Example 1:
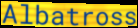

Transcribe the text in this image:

Albatross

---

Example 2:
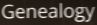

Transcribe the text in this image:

Genealogy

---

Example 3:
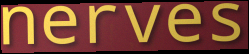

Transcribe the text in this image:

nerves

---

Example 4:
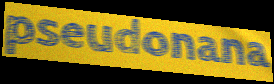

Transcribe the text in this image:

pseudonana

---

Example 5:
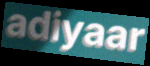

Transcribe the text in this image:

adiyaar